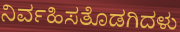
ನಿರ್ವಹಿಸತೊಡಗಿದಳು